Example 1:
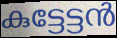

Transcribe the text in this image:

കുട്ടേട്ടൻ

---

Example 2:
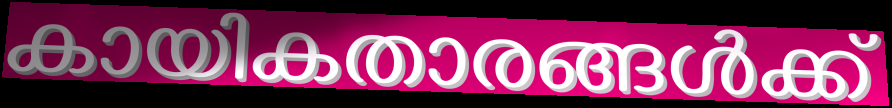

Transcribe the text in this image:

കായികതാരങ്ങൾക്ക്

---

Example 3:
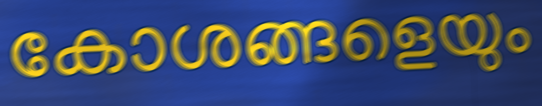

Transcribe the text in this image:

കോശങ്ങളെയും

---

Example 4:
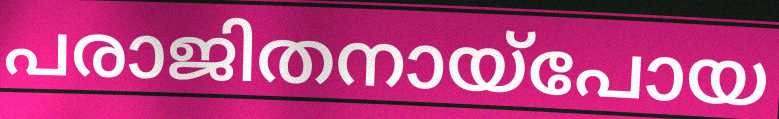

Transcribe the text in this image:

പരാജിതനായ്പോയ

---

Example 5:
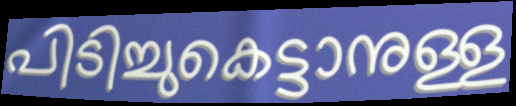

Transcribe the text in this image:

പിടിച്ചുകെട്ടാനുള്ള